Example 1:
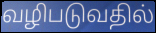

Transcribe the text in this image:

வழிபடுவதில்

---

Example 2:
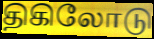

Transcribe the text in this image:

திகிலோடு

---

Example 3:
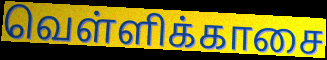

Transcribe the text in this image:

வெள்ளிக்காசை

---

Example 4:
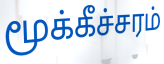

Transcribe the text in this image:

மூக்கீச்சரம்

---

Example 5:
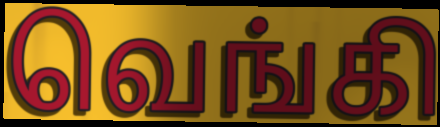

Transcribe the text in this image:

வெங்கி